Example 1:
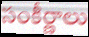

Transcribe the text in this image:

సంకీర్ణాలు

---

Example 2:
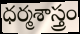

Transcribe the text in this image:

ధర్మశాస్త్రం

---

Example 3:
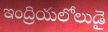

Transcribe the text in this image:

ఇంద్రియలోలుడై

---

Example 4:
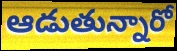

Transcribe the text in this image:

ఆడుతున్నారో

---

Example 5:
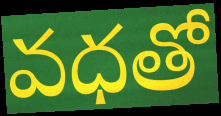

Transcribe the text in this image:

వధతో